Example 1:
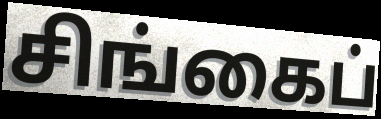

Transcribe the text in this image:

சிங்கைப்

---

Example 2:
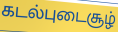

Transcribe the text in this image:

கடல்புடைசூழ்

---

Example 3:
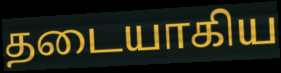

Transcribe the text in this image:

தடையாகிய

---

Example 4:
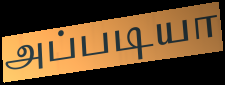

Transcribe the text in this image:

அப்படியா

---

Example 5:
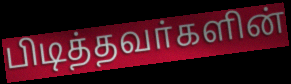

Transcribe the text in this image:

பிடித்தவர்களின்